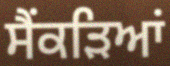
ਸੈਂਕੜਿਆਂ